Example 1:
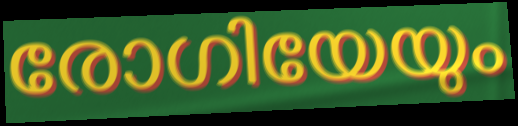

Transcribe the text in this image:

രോഗിയേയും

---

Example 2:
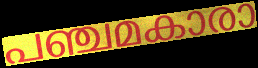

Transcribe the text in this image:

പഞ്ചമകാരാ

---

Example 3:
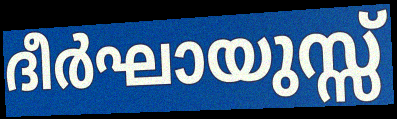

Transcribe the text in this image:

ദീർഘായുസ്സ്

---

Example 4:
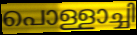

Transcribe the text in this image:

പൊള്ളാച്ചി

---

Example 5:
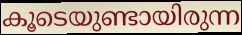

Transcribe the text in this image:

കൂടെയുണ്ടായിരുന്ന